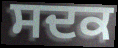
ਸਦਕ